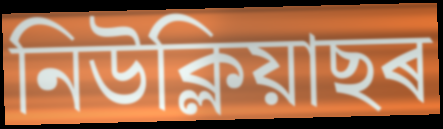
নিউক্লিয়াছৰ